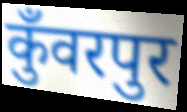
कुँवरपुर